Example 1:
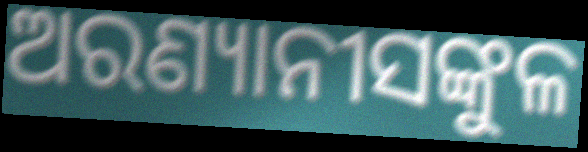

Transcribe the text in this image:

ଅରଣ୍ୟାନୀସଙ୍କୁଳ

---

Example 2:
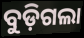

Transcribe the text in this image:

ବୁଡ଼ିଗଲା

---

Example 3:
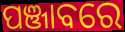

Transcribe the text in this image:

ପଞ୍ଜାବରେ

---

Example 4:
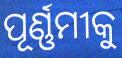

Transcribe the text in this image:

ପୂର୍ଣ୍ଣମୀକୁ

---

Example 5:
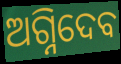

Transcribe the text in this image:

ଅଗ୍ନିଦେବ